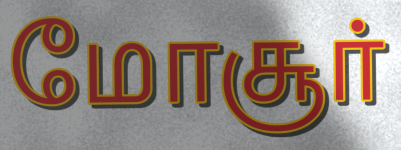
மோசூர்